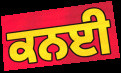
ਕਨਈ